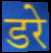
डरे